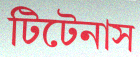
টিটেনাস